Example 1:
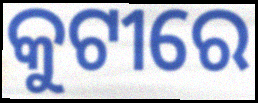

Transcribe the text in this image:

କୁଟୀରେ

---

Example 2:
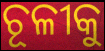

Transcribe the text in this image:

ଚୂଳୀକୁ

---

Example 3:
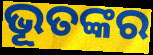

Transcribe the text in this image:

ଭୂତଙ୍କର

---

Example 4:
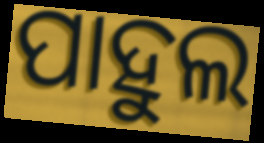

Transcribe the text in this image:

ପାହୁଲ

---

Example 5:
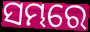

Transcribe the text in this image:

ସମ୍ଭରେ